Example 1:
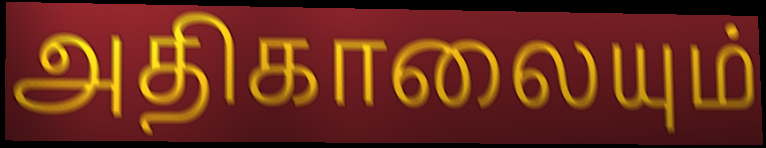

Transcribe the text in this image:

அதிகாலையும்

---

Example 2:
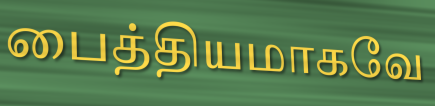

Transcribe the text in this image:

பைத்தியமாகவே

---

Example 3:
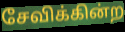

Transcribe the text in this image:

சேவிக்கின்ற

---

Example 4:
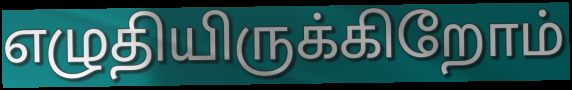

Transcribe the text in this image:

எழுதியிருக்கிறோம்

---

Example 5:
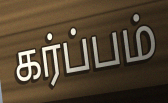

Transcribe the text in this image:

கர்ப்பம்